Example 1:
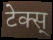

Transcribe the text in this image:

टेक्स्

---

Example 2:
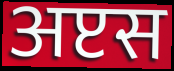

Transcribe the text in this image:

अप्टस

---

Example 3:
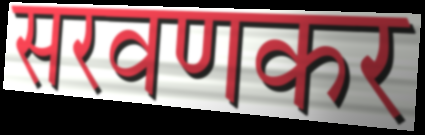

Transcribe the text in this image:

सरवणकर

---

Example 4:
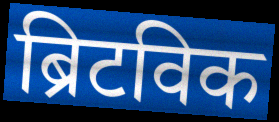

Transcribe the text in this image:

ब्रिटविक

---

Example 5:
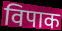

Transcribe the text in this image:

विपाक